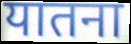
यातना